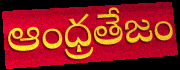
ఆంధ్రతేజం